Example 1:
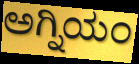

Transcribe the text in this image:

ಅಗ್ನಿಯಂ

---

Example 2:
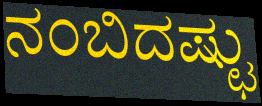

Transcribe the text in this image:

ನಂಬಿದಷ್ಟು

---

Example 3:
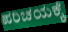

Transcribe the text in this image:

ಪರಿಚಯಕ್ಕೆ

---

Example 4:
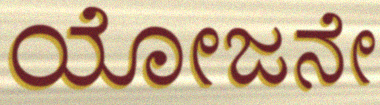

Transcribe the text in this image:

ಯೋಜನೇ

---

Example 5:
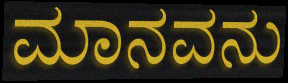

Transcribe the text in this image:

ಮಾನವನು